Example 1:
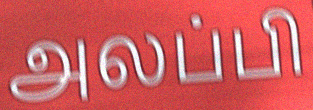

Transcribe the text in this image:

அலப்பி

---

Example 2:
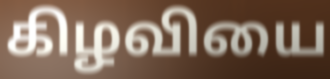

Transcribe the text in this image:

கிழவியை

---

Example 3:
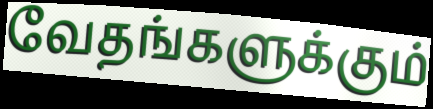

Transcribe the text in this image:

வேதங்களுக்கும்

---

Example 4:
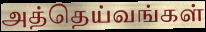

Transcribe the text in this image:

அத்தெய்வங்கள்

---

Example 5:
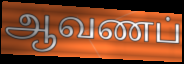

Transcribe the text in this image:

ஆவணப்